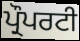
ਪ੍ਰੌਪਰਟੀ